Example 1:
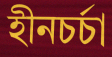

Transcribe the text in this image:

হীনচর্চা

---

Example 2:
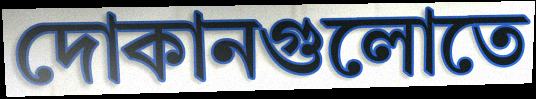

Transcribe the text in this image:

দোকানগুলোতে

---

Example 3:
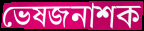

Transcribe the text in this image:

ভেষজনাশক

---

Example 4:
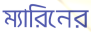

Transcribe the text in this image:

ম্যারিনের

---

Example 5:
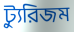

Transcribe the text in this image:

ট্যুরিজম